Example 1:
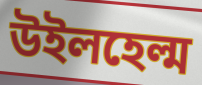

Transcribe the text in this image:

উইলহেল্ম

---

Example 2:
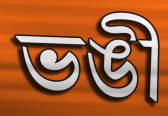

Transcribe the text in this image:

ভঙী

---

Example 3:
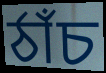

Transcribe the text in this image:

ঠাঁচ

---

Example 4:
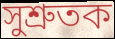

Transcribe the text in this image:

সুশ্ৰুতক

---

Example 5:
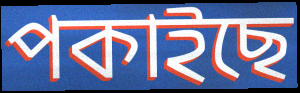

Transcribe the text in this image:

পকাইছে